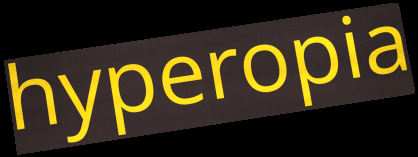
hyperopia